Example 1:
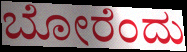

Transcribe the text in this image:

ಬೋರೆಂದು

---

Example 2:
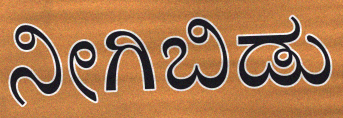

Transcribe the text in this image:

ನೀಗಿಬಿಡು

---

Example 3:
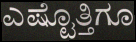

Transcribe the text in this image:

ಎಷ್ಟೊತ್ತಿಗೂ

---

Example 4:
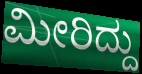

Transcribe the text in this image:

ಮೀರಿದ್ದು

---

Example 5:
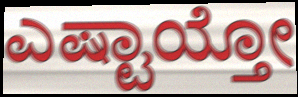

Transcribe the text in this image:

ಎಷ್ಟಾಯ್ತೋ